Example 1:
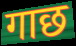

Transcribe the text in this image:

गाछ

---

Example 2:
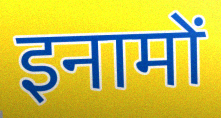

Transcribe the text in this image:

इनामों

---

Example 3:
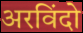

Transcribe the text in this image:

अरविंदो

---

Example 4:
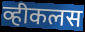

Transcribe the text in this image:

व्हीकलस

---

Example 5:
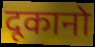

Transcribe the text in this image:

दूकानो